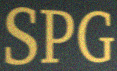
SPG